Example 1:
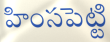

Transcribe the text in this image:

హింసపెట్టి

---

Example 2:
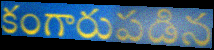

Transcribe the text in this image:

కంగారుపడిన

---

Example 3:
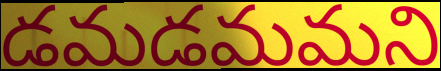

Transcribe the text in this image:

డమడమమని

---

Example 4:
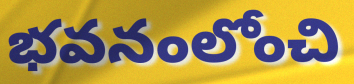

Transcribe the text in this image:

భవనంలోంచి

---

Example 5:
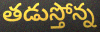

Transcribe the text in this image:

తడుస్తోన్న